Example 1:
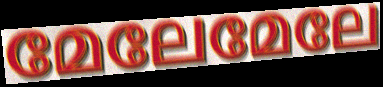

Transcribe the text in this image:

മേലേമേലേ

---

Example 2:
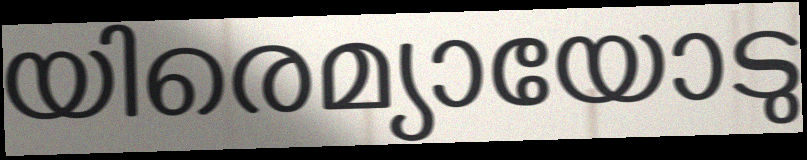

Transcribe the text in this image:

യിരെമ്യായോടു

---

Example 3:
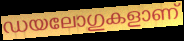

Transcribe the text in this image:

ഡയലോഗുകളാണ്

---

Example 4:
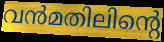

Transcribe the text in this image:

വൻമതിലിന്റെ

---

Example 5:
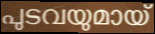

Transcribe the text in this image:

പുടവയുമായ്